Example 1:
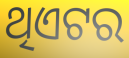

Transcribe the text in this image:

ଥିଏଟର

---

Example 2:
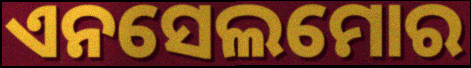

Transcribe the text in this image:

ଏନସେଲମୋର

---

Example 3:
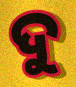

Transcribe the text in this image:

ଦୁ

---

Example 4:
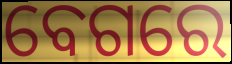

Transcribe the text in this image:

ବେଗରେ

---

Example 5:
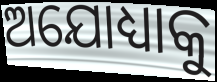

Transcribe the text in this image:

ଅଯୋଧ୍ୟାକୁ